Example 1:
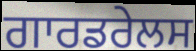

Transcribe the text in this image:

ਗਾਰਡਰੇਲਸ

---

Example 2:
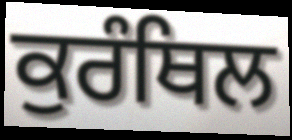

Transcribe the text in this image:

ਕੁਰੰਥਿਲ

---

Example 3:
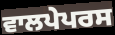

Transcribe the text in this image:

ਵਾਲਪੇਪਰਸ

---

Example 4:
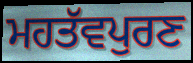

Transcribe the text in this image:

ਮਹਤੱਵਪੁਰਣ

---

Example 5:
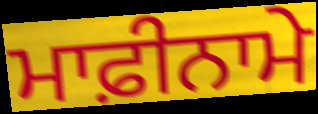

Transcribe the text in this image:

ਮਾਫ਼ੀਨਾਮੇ